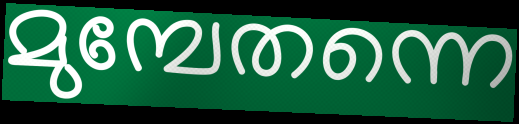
മുമ്പേതന്നെ